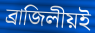
ব্রাজিলীয়ই